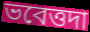
ভবেত্তদা